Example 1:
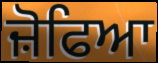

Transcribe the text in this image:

ਜ਼ੋਫਿਆ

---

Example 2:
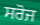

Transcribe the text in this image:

ਸਰੋਜ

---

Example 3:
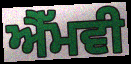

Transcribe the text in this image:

ਐੱਮਵੀ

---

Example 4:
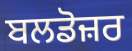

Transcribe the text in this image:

ਬਲਡੋਜ਼ਰ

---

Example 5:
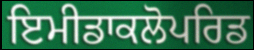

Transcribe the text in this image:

ਇਮੀਡਾਕਲੋਪਰਿਡ